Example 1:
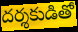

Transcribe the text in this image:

దర్శకుడితో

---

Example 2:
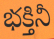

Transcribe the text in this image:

భక్తినీ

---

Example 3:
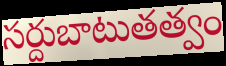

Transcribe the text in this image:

సర్దుబాటుతత్వం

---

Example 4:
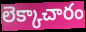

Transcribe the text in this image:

లెక్కాచారం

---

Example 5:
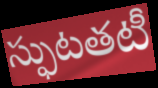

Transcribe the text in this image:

స్ఫుటతటీ